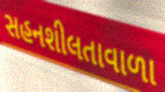
સહનશીલતાવાળા